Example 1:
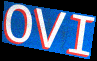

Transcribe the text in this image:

OVI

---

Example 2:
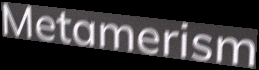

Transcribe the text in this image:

Metamerism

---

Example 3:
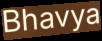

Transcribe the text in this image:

Bhavya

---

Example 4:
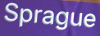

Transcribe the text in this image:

Sprague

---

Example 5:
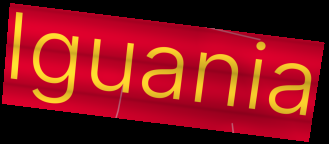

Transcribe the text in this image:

Iguania